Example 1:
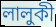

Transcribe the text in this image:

লালুকী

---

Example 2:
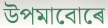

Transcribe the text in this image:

উপমাবোৰে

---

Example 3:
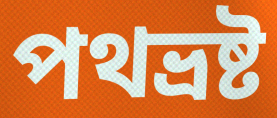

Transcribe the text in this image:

পথভ্ৰষ্ট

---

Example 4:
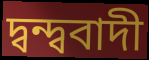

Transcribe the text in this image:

দ্বন্দ্ববাদী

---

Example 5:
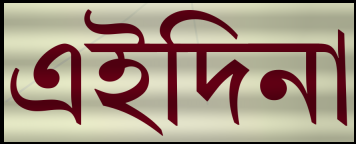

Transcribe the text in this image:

এইদিনা